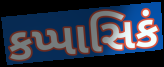
કપ્પાસિકં